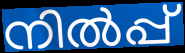
നിൽപ്പ്